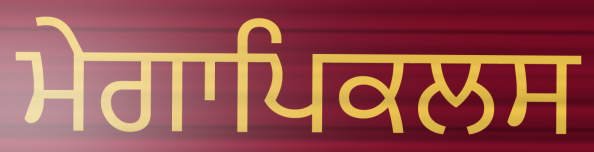
ਮੇਗਾਪਿਕਲਸ